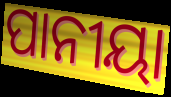
ପାନୀୟା